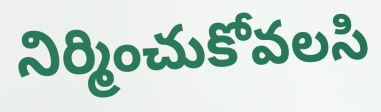
నిర్మించుకోవలసి